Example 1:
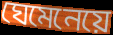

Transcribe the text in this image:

ঘেমেনেয়ে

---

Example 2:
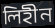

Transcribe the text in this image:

লিহীন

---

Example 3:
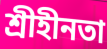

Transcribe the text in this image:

শ্রীহীনতা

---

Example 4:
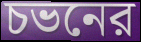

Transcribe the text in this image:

চভনের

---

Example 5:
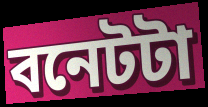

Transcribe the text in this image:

বনেটটা